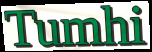
Tumhi